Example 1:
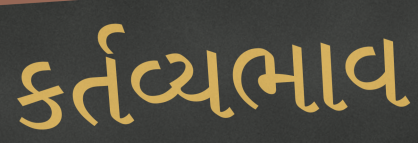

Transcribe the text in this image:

કર્તવ્યભાવ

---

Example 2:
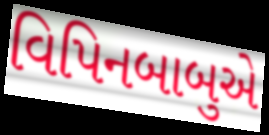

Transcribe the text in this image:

વિપિનબાબુએ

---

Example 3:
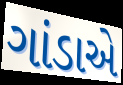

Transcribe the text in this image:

ગાંડાએ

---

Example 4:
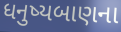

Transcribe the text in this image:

ધનુષ્યબાણના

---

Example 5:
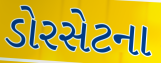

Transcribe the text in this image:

ડોરસેટના